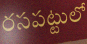
రసపట్టులో